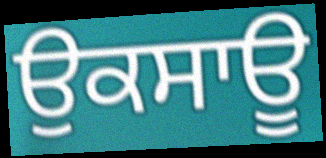
ਉਕਸਾਊ